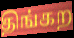
திங்கற